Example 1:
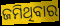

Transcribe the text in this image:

ଜମିଥିବାର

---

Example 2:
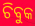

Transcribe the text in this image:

ଚିବୁକ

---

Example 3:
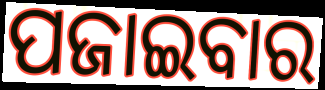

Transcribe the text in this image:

ପଜାଇବାର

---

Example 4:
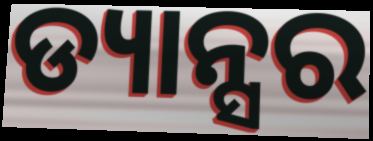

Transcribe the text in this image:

ଡ୍ୟାନ୍ସର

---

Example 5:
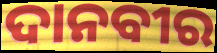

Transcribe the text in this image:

ଦାନବୀର